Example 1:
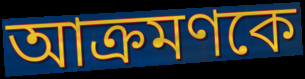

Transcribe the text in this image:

আক্রমণকে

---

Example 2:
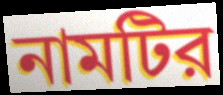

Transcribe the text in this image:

নামটির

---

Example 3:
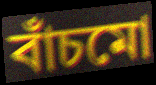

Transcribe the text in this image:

বাঁচমো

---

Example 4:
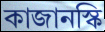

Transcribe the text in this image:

কাজানস্কি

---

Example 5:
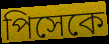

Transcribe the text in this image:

পিসেকে